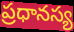
ప్రధానస్య